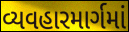
વ્યવહારમાર્ગમાં